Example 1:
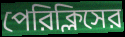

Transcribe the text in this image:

পেরিক্লিসের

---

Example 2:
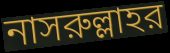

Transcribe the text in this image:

নাসরুল্লাহর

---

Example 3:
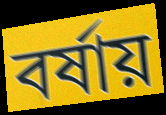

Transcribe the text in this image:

বর্ষায়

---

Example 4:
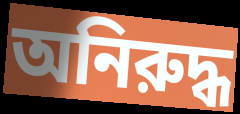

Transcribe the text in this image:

অনিরুদ্ধ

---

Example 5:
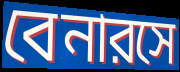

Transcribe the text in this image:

বেনারসে